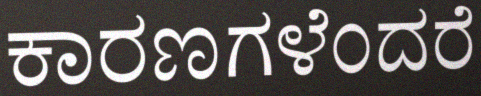
ಕಾರಣಗಳೆಂದರೆ